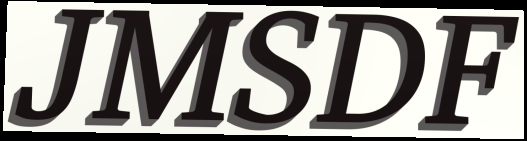
JMSDF